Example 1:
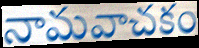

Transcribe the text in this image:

నామవాచకం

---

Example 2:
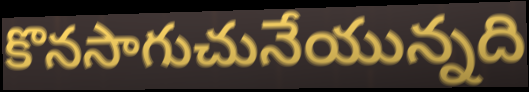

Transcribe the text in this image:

కొనసాగుచునేయున్నది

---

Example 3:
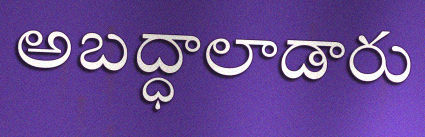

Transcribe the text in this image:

అబద్ధాలాడారు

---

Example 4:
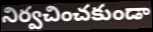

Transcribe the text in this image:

నిర్వచించకుండా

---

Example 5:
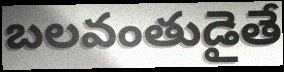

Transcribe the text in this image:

బలవంతుడైతే